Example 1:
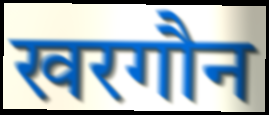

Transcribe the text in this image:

खरगौन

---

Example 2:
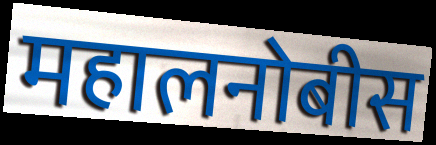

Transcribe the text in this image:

महालनोबीस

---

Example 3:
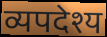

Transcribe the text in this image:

व्यपदेश्य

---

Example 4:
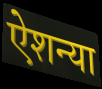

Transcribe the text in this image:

ऐशन्या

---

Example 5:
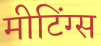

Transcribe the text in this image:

मीटिंग्स